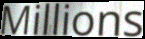
Millions